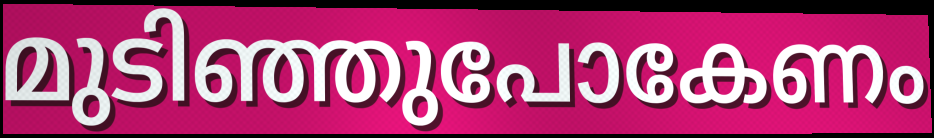
മുടിഞ്ഞുപോകേണം